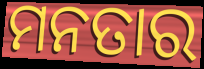
ମନତାର